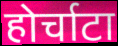
होर्चाटा